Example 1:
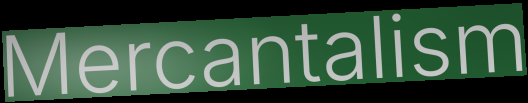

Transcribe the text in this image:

Mercantalism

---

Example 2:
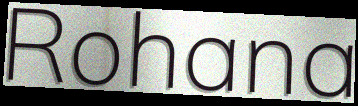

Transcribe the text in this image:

Rohana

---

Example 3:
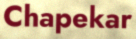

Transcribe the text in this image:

Chapekar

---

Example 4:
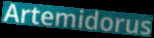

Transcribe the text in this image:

Artemidorus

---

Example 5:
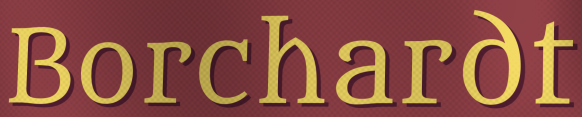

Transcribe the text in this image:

Borchardt